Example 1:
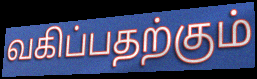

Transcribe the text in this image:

வகிப்பதற்கும்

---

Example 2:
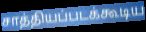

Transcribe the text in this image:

சாத்தியப்படக்கூடிய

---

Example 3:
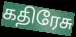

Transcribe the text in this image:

கதிரேசு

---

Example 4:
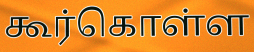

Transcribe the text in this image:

கூர்கொள்ள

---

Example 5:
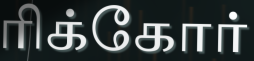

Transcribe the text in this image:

ரிக்கோர்